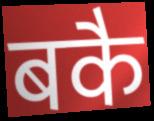
बकै